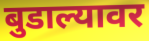
बुडाल्यावर